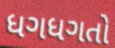
ધગધગતો